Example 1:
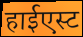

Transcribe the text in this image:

हाईएस्ट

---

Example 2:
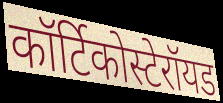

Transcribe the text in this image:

कॉर्टिकोस्टेरॉयड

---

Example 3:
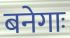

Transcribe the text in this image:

बनेगाः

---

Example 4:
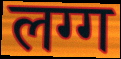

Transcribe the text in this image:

लग्ग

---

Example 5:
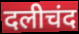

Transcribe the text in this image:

दलीचंद